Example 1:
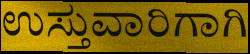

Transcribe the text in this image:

ಉಸ್ತುವಾರಿಗಾಗಿ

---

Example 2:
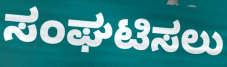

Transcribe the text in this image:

ಸಂಘಟಿಸಲು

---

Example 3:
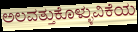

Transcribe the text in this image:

ಅಲವತ್ತುಕೊಳ್ಳುವಿಕೆಯ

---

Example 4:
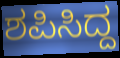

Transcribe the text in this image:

ಶಪಿಸಿದ್ದ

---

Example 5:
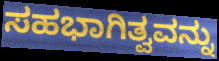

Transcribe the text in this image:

ಸಹಭಾಗಿತ್ವವನ್ನು